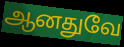
ஆனதுவே